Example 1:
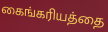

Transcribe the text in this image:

கைங்கரியத்தை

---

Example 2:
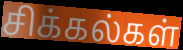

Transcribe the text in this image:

சிக்கல்கள்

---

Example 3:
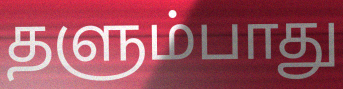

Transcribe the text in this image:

தளும்பாது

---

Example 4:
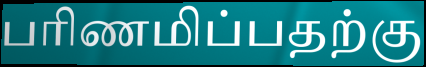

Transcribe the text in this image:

பரிணமிப்பதற்கு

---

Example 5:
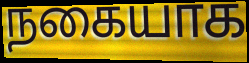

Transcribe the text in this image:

நகையாக